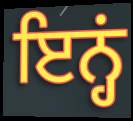
ਇਨ੍ਹਂ